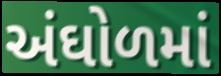
અંઘોળમાં